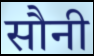
सौनी